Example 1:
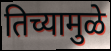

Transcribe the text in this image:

तिच्यामुळे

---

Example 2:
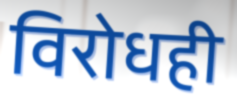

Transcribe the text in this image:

विरोधही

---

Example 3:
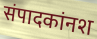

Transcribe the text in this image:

संपादकांनश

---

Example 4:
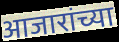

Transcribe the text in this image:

आजारांच्या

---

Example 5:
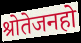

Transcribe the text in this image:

श्रोतेजनहो